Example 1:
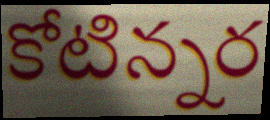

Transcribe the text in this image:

కోటిన్నర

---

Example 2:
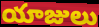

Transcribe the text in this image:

యాజులు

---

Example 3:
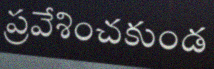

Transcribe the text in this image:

ప్రవేశించకుండ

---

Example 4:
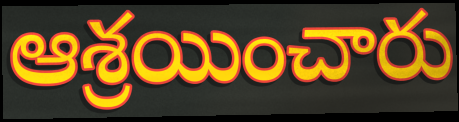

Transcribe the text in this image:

ఆశ్రయించారు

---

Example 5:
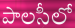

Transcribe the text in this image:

పాలసీలో